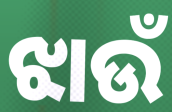
ଝାଉଁ